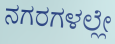
ನಗರಗಳಲ್ಲೇ